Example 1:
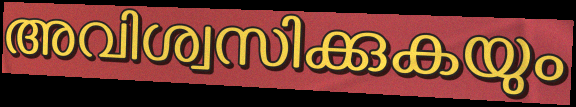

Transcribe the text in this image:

അവിശ്വസിക്കുകയും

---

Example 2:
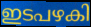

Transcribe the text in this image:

ഇടപഴകി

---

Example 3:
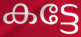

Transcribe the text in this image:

കട്ടേ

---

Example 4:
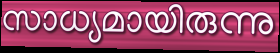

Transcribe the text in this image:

സാധ്യമായിരുന്നു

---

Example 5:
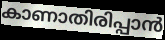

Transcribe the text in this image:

കാണാതിരിപ്പാൻ